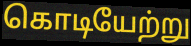
கொடியேற்று